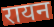
रायन